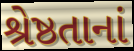
શ્રેષ્ઠતાનાં